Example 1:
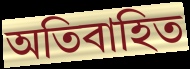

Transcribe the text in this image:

অতিবাহিত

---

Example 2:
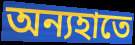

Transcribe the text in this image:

অন্যহাতে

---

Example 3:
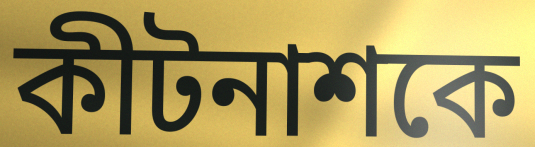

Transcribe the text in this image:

কীটনাশকে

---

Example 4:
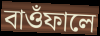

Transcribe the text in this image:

বাওঁফালে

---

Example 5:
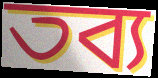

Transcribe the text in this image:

তব্য